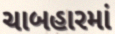
ચાબહારમાં